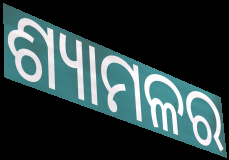
ଶ୍ୟାମଳର